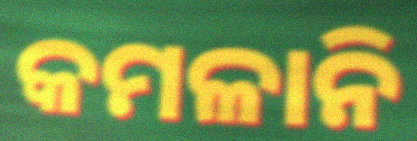
କମଳାନି